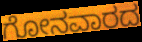
ಗೋನವಾರದ